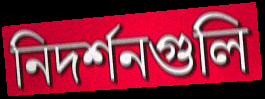
নিদর্শনগুলি